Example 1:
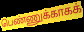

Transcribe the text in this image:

பெண்ணுக்காகக்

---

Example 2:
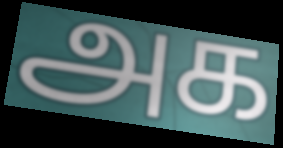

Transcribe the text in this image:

அக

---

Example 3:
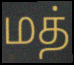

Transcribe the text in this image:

மத்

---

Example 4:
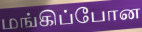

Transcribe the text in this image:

மங்கிப்போன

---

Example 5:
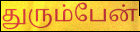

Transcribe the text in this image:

துரும்பேன்